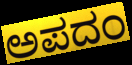
ಅಪದಂ